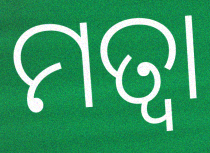
ମତ୍ୱା